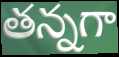
తన్నగా